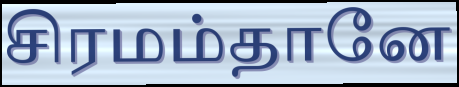
சிரமம்தானே